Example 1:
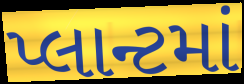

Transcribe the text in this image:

પ્લાન્ટમાં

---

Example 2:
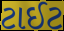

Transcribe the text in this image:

ટાઈટ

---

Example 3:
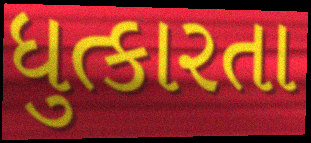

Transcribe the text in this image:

ધુત્કારતા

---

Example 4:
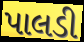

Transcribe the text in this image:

પાલડી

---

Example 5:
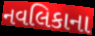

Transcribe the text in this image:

નવલિકાના